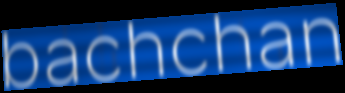
bachchan